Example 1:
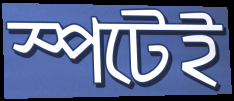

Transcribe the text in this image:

স্পটেই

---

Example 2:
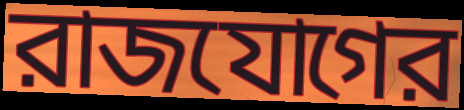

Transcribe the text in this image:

রাজযোগের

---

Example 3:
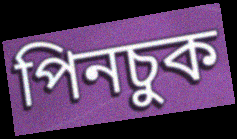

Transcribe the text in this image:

পিনচুক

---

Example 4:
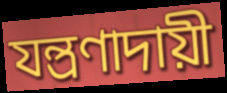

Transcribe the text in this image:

যন্ত্রণাদায়ী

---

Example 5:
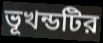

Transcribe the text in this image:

ভূখন্ডটির